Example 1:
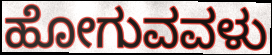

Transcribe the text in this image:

ಹೋಗುವವಳು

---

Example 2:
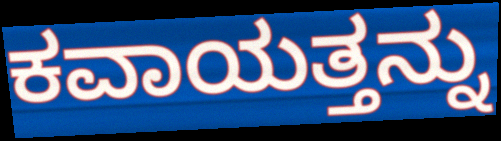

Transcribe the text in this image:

ಕವಾಯತ್ತನ್ನು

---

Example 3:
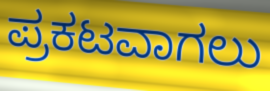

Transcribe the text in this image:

ಪ್ರಕಟವಾಗಲು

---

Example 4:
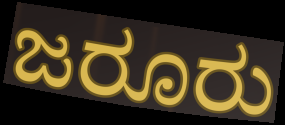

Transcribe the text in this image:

ಜರೂರು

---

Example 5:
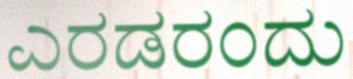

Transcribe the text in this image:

ಎರಡರಂದು